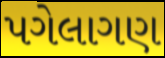
પગેલાગણ